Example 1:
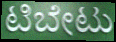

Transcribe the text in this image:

ಟಿಬೇಟು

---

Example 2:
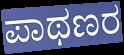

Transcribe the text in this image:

ಪಾಥಣರ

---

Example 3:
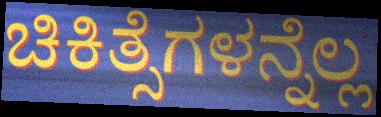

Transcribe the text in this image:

ಚಿಕಿತ್ಸೆಗಳನ್ನೆಲ್ಲ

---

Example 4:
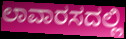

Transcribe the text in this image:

ಲಾವಾರಸದಲ್ಲಿ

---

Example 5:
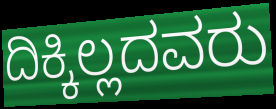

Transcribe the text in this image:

ದಿಕ್ಕಿಲ್ಲದವರು